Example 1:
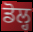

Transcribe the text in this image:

ਡੋਲ੍ਹ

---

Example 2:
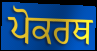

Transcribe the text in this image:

ਪੋਕਰਥ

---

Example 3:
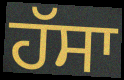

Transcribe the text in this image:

ਹੱਸਾ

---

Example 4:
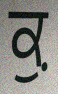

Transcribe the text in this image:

ਕ਼ੁ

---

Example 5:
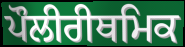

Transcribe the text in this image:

ਪੌਲੀਰੀਥਮਿਕ